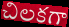
చిలకగా